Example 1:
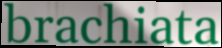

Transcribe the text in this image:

brachiata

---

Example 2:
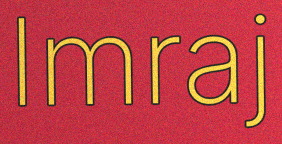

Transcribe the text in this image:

Imraj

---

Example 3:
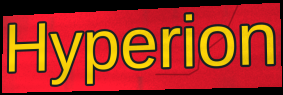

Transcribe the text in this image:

Hyperion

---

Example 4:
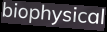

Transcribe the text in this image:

biophysical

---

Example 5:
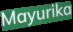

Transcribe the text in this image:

Mayurika